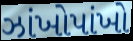
ઝાંખોપાંખો